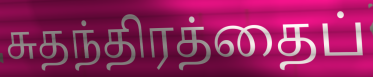
சுதந்திரத்தைப்